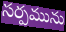
సర్పమును